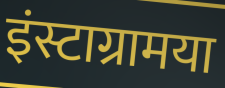
इंस्टाग्रामया